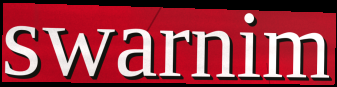
swarnim